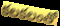
కలకలంతో